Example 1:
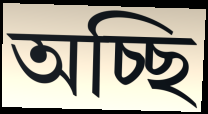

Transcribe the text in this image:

অচ্ছি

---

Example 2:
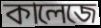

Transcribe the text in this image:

কালেজে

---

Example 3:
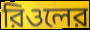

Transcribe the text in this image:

রিওলের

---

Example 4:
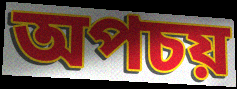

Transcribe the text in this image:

অপচয়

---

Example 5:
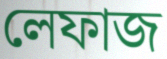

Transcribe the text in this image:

লেফাজ